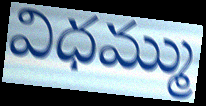
విధమ్ము